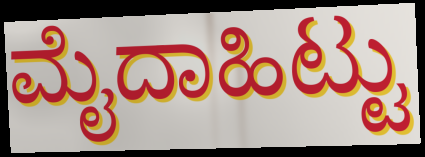
ಮೈದಾಹಿಟ್ಟು